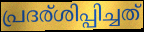
പ്രദര്ശിപ്പിച്ചത്